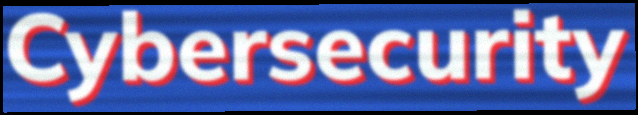
Cybersecurity